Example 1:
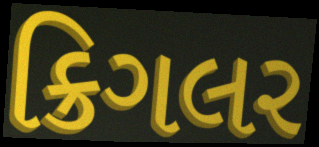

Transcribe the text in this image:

ક્રિગલર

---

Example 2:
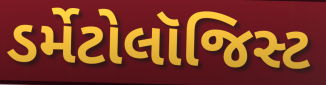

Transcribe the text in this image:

ડર્મેટોલૉજિસ્ટ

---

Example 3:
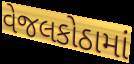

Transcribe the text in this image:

વેજલકોઠામાં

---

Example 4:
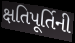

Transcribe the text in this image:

ક્ષતિપૂર્તિની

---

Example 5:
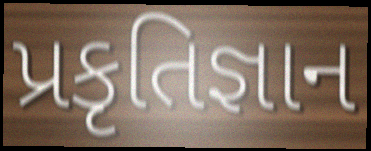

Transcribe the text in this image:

પ્રકૃતિજ્ઞાન